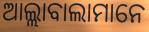
ଆଲ୍ଲାବାଲାମାନେ